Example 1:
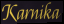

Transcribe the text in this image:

Karnika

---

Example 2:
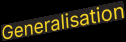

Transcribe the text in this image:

Generalisation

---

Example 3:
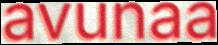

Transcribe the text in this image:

avunaa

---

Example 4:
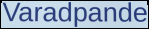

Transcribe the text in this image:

Varadpande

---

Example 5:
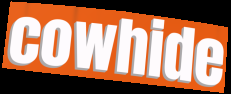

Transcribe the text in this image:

cowhide